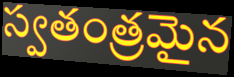
స్వతంత్రమైన